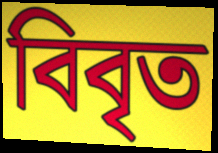
বিবৃত